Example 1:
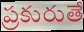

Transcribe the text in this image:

ప్రకురుతే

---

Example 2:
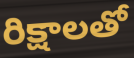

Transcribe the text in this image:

రిక్షాలతో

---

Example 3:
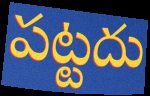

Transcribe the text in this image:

పట్టదు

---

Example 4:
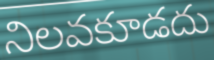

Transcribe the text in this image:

నిలవకూడదు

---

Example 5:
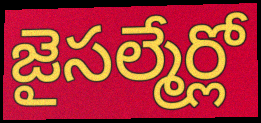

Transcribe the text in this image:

జైసల్మేర్లో